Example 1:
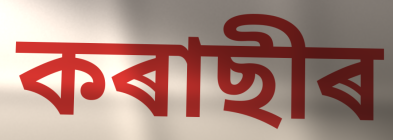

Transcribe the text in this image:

কৰাছীৰ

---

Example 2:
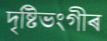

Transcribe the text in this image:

দৃষ্টিভংগীৰ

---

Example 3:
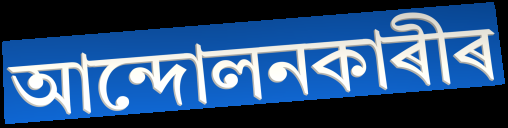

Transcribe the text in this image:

আন্দোলনকাৰীৰ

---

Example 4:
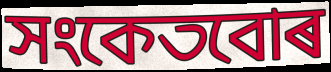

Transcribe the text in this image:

সংকেতবোৰ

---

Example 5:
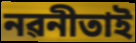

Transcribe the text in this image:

নৱনীতাই